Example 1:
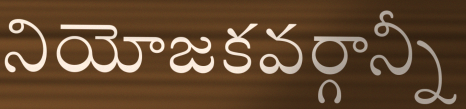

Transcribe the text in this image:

నియోజకవర్గాన్నీ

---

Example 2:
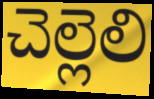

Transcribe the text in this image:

చెల్లెలి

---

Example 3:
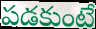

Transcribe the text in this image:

పడకుంటే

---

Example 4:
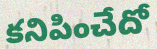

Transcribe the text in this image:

కనిపించేదో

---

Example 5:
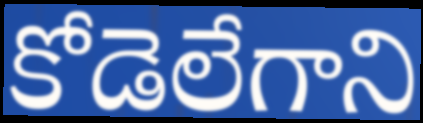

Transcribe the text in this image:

కోడెలేగాని